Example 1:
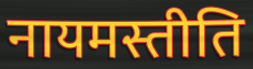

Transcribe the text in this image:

नायमस्तीति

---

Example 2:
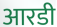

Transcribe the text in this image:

आरडी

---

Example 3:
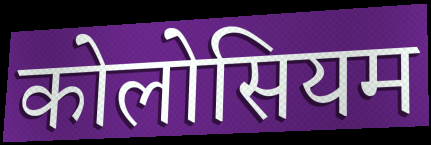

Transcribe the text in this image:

कोलोसियम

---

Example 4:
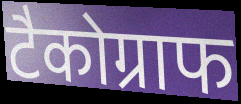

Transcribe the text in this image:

टैकोग्राफ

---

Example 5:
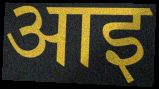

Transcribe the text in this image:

आइ